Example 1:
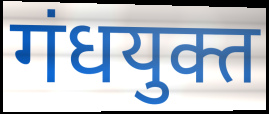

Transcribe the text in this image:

गंधयुक्‍त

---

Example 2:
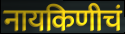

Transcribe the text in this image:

नायकिणीचं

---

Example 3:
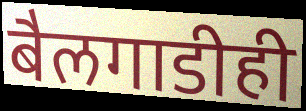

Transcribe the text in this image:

बैलगाडीही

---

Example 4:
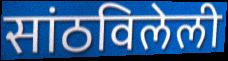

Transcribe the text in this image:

सांठविलेली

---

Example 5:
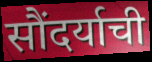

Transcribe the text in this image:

सौंदर्याची